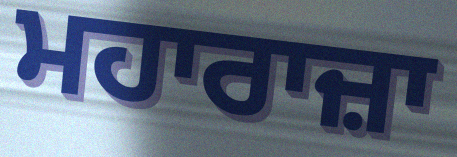
ਮਹਾਰਾਜ਼ਾ